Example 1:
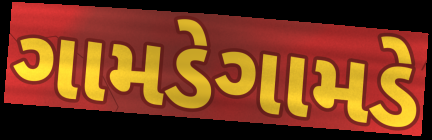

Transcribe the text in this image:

ગામડેગામડે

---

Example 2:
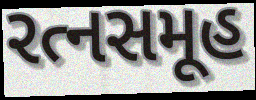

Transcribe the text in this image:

રત્નસમૂહ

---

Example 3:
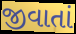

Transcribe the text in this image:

જીવાતાં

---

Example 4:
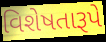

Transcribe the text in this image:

વિશેષતારૂપે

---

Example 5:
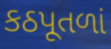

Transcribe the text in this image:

કઠપૂતળાં